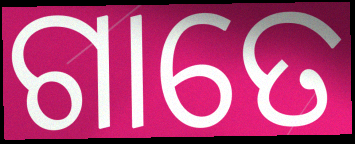
ଗାତେ